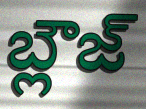
బ్లౌజ్